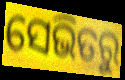
ସେଭିତରୁ